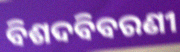
ବିଶଦବିବରଣୀ